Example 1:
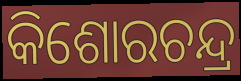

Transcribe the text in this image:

କିଶୋରଚନ୍ଦ୍ର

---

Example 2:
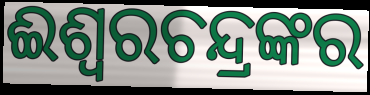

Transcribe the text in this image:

ଈଶ୍ଵରଚନ୍ଦ୍ରଙ୍କର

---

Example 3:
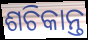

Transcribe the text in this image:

ଶଚିକାନ୍ତ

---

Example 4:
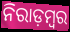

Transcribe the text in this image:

ନିରାଡ଼ମ୍ବର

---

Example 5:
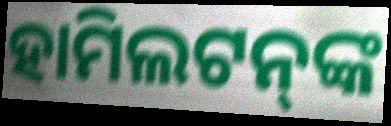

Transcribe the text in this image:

ହାମିଲଟନ୍‍ଙ୍କ